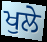
ਖੁਲੇ